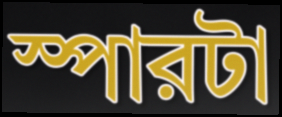
স্পারটা